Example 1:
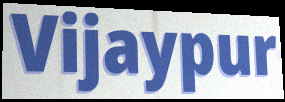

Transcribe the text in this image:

Vijaypur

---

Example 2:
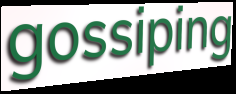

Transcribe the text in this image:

gossiping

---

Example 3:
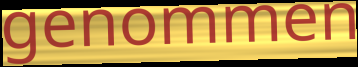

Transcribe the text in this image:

genommen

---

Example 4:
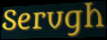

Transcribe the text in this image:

Serugh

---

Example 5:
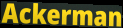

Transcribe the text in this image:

Ackerman